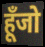
हूँजो